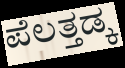
ಪೆಲತ್ತಡ್ಕ